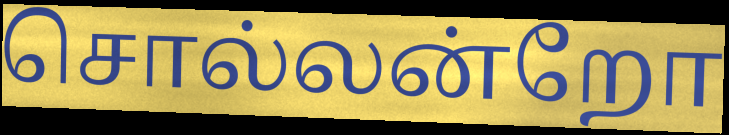
சொல்லன்றோ